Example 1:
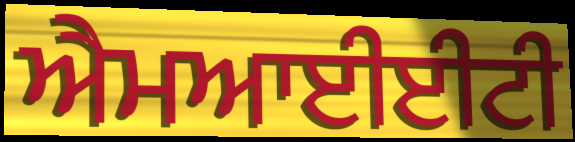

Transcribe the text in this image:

ਐਮਆਈਈਟੀ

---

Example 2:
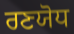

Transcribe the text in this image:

ਰਣਯੋਧ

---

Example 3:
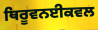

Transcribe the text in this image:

ਥਿਰੂਵਨਈਕਵਲ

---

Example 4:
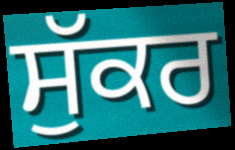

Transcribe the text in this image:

ਸੁੱਕਰ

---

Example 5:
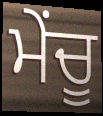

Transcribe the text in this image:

ਮੇਂਚੂ